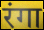
रंगा